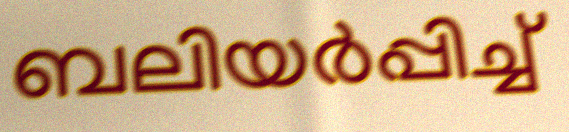
ബലിയർപ്പിച്ച്